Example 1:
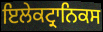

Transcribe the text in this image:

ਇਲੇਕਟ੍ਰਾਨਿਕਸ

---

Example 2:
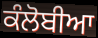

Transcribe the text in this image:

ਕੰਲੋਬੀਆ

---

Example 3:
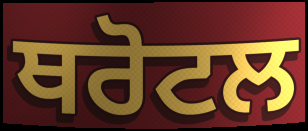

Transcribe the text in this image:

ਥਰੋਟਲ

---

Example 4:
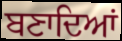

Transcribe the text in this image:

ਬਣਾਦਿਆਂ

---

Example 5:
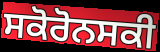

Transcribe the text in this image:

ਸਕੋਰੋਨਸਕੀ